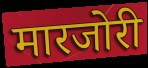
मारजोरी